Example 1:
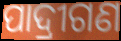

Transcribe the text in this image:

ପାଦ୍ରୀଗଣ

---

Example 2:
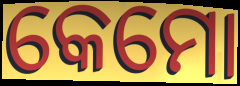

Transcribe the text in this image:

କେମୋ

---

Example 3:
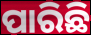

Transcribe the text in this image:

ପାରିଛି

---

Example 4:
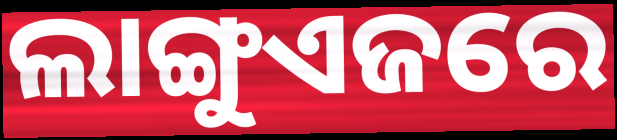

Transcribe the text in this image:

ଲାଙ୍ଗୁଏଜରେ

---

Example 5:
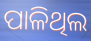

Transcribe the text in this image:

ପାଳିଥିଲ